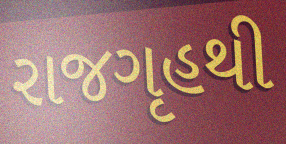
રાજગૃહથી